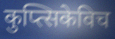
कुप्त्सिकेविच